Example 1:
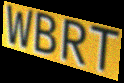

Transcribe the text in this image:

WBRT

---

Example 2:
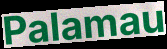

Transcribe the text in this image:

Palamau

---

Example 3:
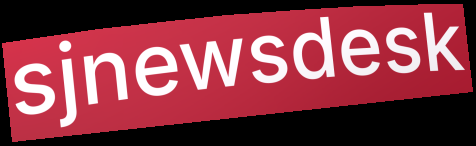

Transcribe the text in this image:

sjnewsdesk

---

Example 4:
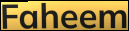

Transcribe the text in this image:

Faheem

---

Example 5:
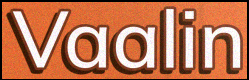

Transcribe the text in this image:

Vaalin